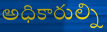
అధికారుల్ని